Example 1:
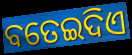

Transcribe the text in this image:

ବତେଇଦିଏ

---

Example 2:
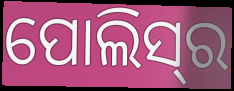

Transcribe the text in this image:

ପୋଲିସ୍‍ର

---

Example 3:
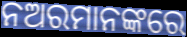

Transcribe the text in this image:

ନଅରମାନଙ୍କରେ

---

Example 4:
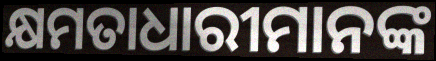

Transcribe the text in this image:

କ୍ଷମତାଧାରୀମାନଙ୍କ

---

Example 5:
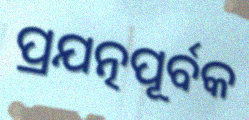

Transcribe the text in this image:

ପ୍ରଯତ୍ନପୂର୍ବକ